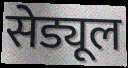
सेड्यूल